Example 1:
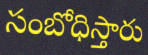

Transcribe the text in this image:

సంబోధిస్తారు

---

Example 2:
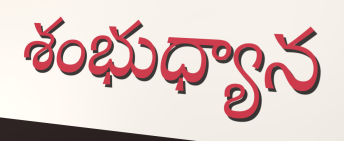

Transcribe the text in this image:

శంభుధ్యాన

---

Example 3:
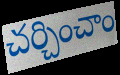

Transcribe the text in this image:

చర్చించాం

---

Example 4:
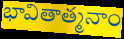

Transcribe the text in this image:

భావితాత్మనాం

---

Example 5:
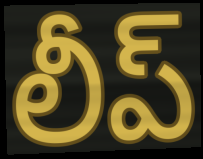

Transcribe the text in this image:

లీప్